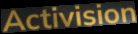
Activision